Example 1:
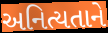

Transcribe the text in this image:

અનિત્યતાને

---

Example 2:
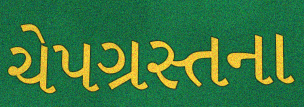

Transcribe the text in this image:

ચેપગ્રસ્તના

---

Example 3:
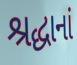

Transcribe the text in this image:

શ્રદ્ધાનાં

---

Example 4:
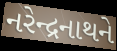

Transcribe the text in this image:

નરેન્દ્રનાથને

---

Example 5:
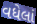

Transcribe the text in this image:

વધેલાં